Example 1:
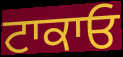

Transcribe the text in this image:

ਟਾਕਾਓ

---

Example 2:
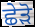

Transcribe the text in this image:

ਛੇੜੋ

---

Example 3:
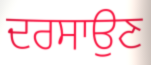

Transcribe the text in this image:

ਦਰਸਾਉਣ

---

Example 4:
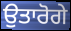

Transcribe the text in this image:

ਉਤਾਰੋਗੇ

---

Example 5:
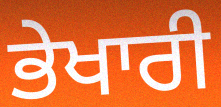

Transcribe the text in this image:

ਭੇਖਾਰੀ